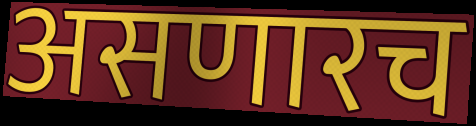
असणारच